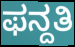
ಫನ್ದತಿ